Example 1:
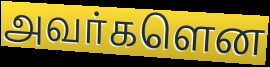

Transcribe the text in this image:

அவர்களென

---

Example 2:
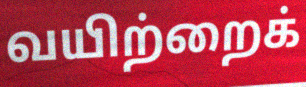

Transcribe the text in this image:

வயிற்றைக்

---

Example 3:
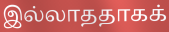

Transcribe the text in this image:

இல்லாததாகக்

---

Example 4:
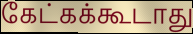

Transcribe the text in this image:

கேட்கக்கூடாது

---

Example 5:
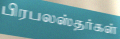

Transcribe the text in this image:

பிரபலஸ்தர்கள்